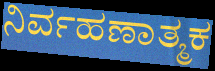
ನಿರ್ವಹಣಾತ್ಮಕ